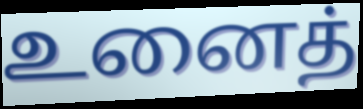
உனைத்